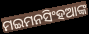
ମଇମନସିଂହଆଙ୍କ